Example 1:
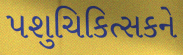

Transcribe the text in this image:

પશુચિકિત્સકને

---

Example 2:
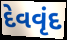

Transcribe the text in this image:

દેવવૃંદ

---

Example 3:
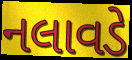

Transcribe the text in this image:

નલાવડે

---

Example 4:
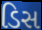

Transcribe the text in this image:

ડિસ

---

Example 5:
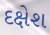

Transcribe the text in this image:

દક્ષેશ